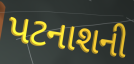
પટનાશની